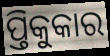
ପ୍ତିକୁକାର